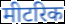
मीटरिक